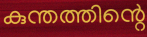
കുന്തത്തിന്റെ